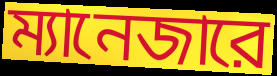
ম্যানেজারে